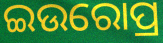
ଇଉରୋପ୍ର